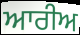
ਆਰੀਅ